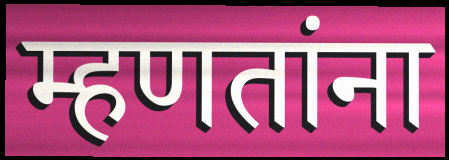
म्हणतांना